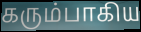
கரும்பாகிய